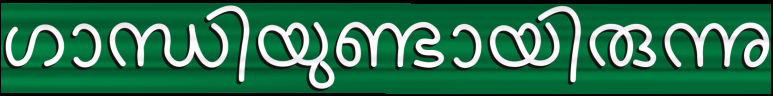
ഗാന്ധിയുണ്ടായിരുന്നു